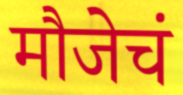
मौजेचं